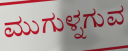
ಮುಗುಳ್ನಗುವ